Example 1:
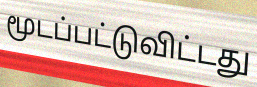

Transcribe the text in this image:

மூடப்பட்டுவிட்டது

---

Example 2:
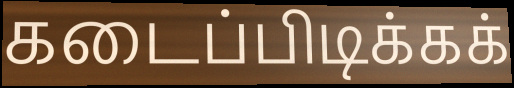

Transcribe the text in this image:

கடைப்பிடிக்கக்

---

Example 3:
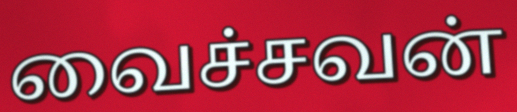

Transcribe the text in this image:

வைச்சவன்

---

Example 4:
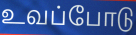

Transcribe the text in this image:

உவப்போடு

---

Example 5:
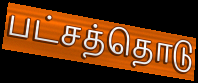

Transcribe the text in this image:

பட்சத்தொடு